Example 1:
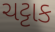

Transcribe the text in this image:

ચટ્ટાક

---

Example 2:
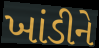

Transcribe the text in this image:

ખાંડીને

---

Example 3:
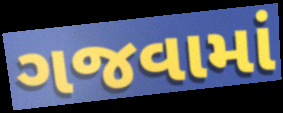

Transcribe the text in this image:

ગજવામાં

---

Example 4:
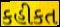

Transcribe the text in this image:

કહીકત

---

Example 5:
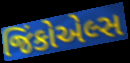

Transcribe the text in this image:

જિંકોએલ્સ